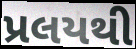
પ્રલયથી